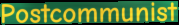
Postcommunist